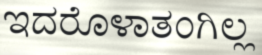
ಇದರೊಳಾತಂಗಿಲ್ಲ